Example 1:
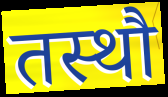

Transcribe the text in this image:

तस्थौ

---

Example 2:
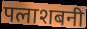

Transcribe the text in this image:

पलाशबनी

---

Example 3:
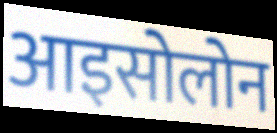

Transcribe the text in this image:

आइसोलोन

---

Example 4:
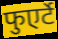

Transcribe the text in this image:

फुएर्टे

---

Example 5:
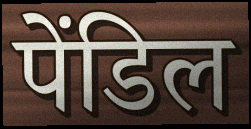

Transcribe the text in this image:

पेंडिल